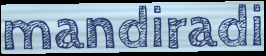
mandiradi